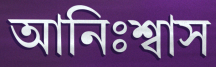
আনিঃশ্বাস